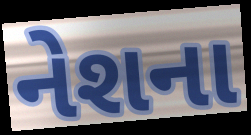
નેશના